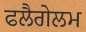
ਫਲੈਗੇਲਮ